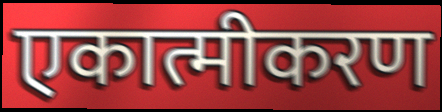
एकात्मीकरण